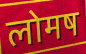
लोमष